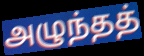
அழுந்தத்